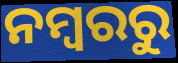
ନମ୍ୱରରୁ